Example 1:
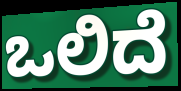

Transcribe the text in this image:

ಒಲಿದೆ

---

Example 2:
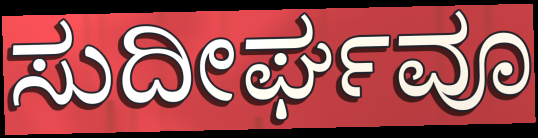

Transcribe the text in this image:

ಸುದೀರ್ಘವೂ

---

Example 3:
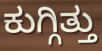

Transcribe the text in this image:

ಕುಗ್ಗಿತ್ತು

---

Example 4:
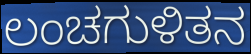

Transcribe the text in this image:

ಲಂಚಗುಳಿತನ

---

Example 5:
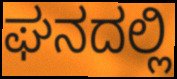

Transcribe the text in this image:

ಘನದಲ್ಲಿ